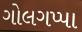
ગોલગપ્પા